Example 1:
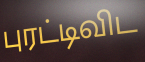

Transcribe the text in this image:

புரட்டிவிட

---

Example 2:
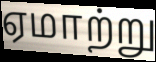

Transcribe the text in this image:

ஏமாற்று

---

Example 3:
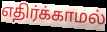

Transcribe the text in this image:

எதிர்க்காமல்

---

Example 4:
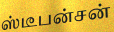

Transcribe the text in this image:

ஸ்டீபன்சன்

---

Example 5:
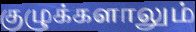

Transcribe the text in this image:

குழுக்களாலும்